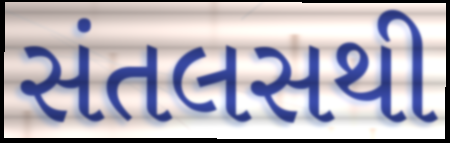
સંતલસથી